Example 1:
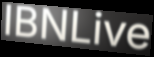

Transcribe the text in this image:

IBNLive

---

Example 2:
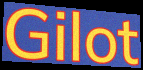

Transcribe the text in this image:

Gilot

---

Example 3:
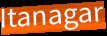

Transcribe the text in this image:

Itanagar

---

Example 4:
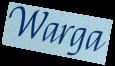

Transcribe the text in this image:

Warga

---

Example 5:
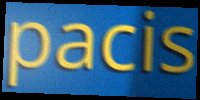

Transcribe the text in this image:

pacis